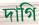
দাগি